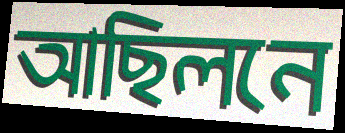
আছিলনে